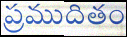
ప్రముదితం